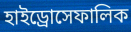
হাইড্রোসেফালিক